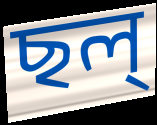
ছল্